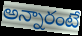
అన్నారంటే